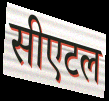
सीएटल